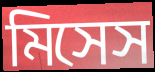
মিসেস